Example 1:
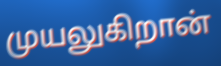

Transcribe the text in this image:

முயலுகிறான்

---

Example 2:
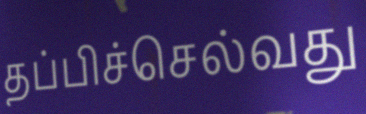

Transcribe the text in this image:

தப்பிச்செல்வது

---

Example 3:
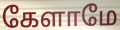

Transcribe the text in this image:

கேளாமே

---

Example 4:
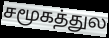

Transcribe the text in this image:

சமூகத்துல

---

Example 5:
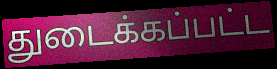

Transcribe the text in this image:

துடைக்கப்பட்ட